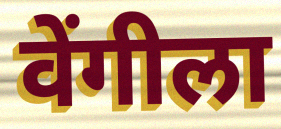
वेंगीला